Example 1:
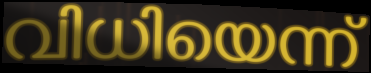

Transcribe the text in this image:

വിധിയെന്ന്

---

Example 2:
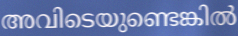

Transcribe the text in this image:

അവിടെയുണ്ടെങ്കിൽ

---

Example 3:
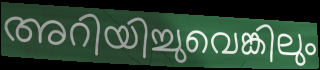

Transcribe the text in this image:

അറിയിച്ചുവെങ്കിലും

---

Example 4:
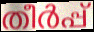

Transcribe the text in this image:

തീർപ്പ്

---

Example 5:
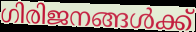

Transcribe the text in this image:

ഗിരിജനങ്ങൾക്ക്